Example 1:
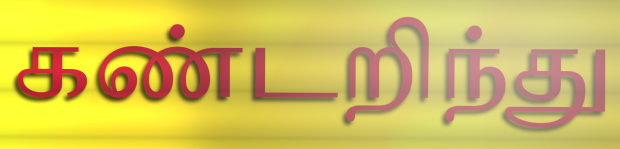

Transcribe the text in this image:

கண்டறிந்து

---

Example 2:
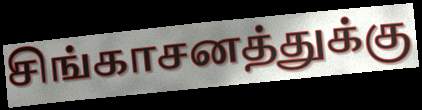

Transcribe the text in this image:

சிங்காசனத்துக்கு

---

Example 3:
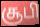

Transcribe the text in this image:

சூபி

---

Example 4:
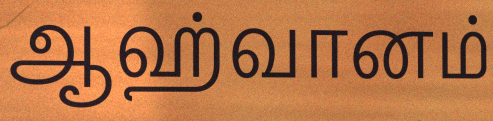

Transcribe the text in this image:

ஆஹ்வானம்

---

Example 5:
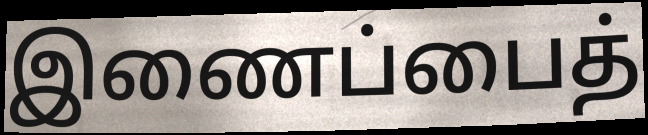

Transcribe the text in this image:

இணைப்பைத்